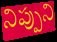
నిప్పుని